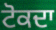
ਟੋਕਦਾ